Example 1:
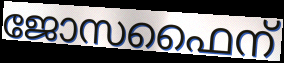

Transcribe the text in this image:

ജോസഫൈന്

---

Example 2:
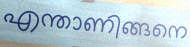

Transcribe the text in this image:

എന്താണിങ്ങനെ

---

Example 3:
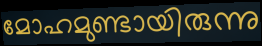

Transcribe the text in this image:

മോഹമുണ്ടായിരുന്നു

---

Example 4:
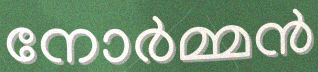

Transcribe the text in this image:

നോർമ്മൻ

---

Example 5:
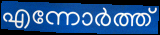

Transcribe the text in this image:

എന്നോർത്ത്